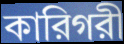
কারিগরী